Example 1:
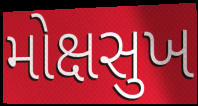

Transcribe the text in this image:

મોક્ષસુખ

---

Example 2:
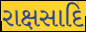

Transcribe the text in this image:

રાક્ષસાદિ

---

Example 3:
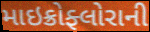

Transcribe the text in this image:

માઇક્રોફ્લોરાની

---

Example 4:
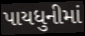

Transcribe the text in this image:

પાયધુનીમાં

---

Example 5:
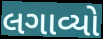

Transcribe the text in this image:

લગાવ્યો